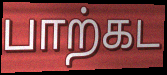
பாற்கட